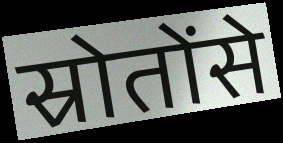
स्रोतोंसे